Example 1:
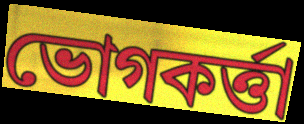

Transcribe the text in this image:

ভোগকর্ত্তা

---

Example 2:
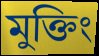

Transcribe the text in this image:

মুক্তিং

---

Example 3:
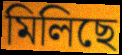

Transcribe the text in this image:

মিলিছে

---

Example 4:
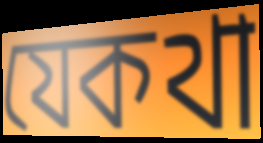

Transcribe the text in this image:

যেকথা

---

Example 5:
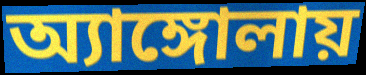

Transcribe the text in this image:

অ্যাঙ্গোলায়